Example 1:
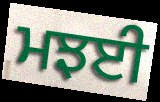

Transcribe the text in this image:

ਮਝਈ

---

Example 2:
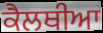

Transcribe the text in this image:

ਕੈਲਥੀਆ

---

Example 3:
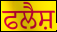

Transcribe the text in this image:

ਫਲੈਸ਼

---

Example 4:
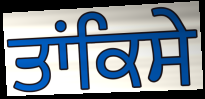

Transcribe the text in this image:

ਤਾਂਕਿਸੇ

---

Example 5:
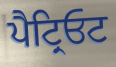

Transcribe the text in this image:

ਪੈਟ੍ਰਿਓਟ